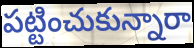
పట్టించుకున్నారా